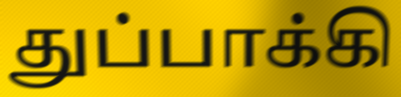
துப்பாக்கி